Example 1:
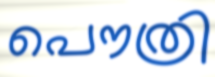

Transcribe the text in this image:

പൌത്രി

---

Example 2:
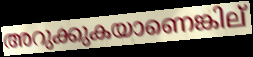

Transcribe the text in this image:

അറുക്കുകയാണെങ്കില്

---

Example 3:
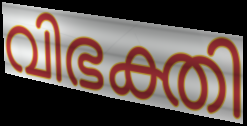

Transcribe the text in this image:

വിഭക്തി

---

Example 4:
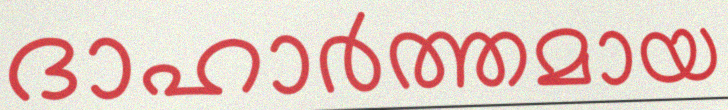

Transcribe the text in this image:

ദാഹാർത്തമായ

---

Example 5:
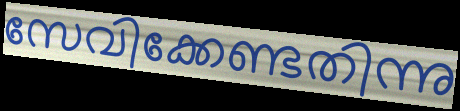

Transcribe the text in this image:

സേവിക്കേണ്ടതിന്നു